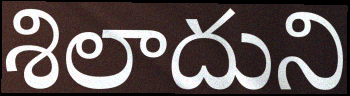
శిలాదుని